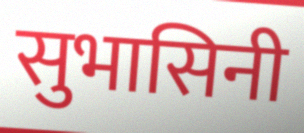
सुभासिनी